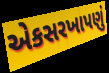
એકસરખાપણું